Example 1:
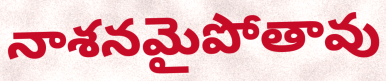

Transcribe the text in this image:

నాశనమైపోతావు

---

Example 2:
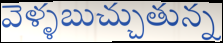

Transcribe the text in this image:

వెళ్ళబుచ్చుతున్న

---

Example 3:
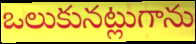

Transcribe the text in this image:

ఒలుకునట్లుగాను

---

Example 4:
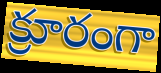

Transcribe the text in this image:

క్రూరంగా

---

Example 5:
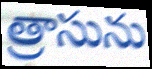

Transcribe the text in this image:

త్రాసును